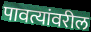
पावत्यांवरील